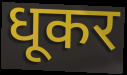
धूकर